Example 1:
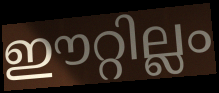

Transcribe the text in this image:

ഈറ്റില്ലം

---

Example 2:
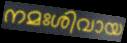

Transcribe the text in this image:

നമഃശിവായ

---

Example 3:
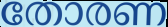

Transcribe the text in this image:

തോരണ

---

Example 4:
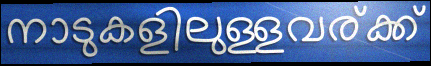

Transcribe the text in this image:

നാടുകളിലുള്ളവര്ക്ക്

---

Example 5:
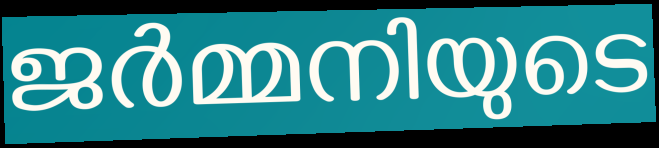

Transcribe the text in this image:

ജർമ്മനിയുടെ